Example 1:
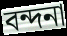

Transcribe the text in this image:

বন্দনা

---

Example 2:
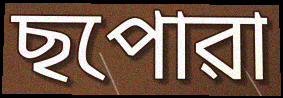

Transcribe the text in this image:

ছপোৱা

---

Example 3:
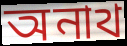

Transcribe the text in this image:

অনাথ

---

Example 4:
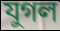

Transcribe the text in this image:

যুগল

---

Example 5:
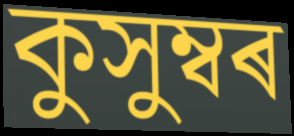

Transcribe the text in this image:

কুসুম্বৰ